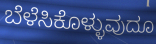
ಬೆಳೆಸಿಕೊಳ್ಳುವುದೂ